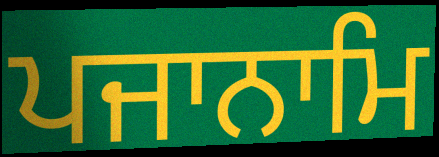
ਪਜਾਨਾਮਿ